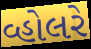
વ્હોલરે